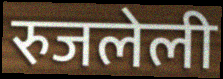
रुजलेली